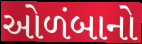
ઓળંબાનો